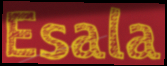
Esala